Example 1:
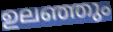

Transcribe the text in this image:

ഉലഞ്ഞും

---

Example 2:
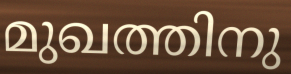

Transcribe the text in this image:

മുഖത്തിനു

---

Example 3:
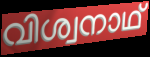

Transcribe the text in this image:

വിശ്വനാഥ്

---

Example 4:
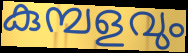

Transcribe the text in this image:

കുമ്പളവും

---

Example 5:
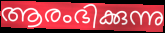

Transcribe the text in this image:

ആരംഭിക്കുന്നു